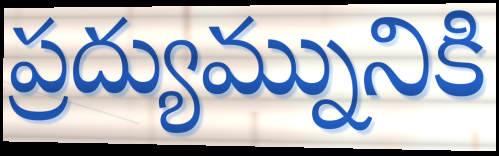
ప్రద్యుమ్నునికి